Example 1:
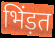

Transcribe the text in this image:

भिंड़त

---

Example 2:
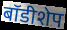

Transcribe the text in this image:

बॉडीशेप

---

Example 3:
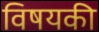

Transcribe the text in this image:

विषयकी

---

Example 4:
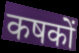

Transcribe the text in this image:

कषकों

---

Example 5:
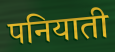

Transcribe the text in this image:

पनियाती